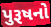
પુરૂષનો